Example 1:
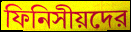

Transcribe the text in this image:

ফিনিসীয়দের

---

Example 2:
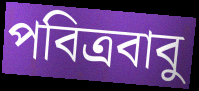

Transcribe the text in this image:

পবিত্রবাবু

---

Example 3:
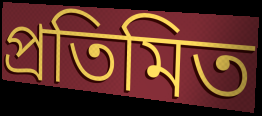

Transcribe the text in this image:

প্রতিমিত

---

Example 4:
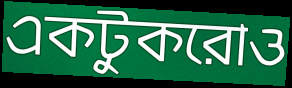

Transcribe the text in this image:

একটুকরোও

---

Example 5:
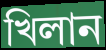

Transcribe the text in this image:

খিলান